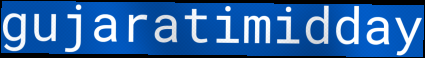
gujaratimidday